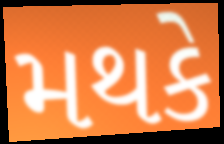
મથકે